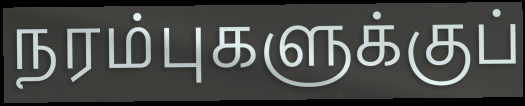
நரம்புகளுக்குப்